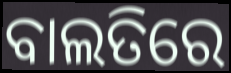
ବାଲତିରେ